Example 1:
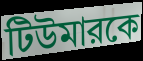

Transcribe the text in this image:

টিউমারকে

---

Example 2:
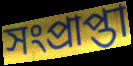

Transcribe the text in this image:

সংপ্রাপ্তা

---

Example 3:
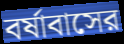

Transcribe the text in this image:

বর্ষাবাসের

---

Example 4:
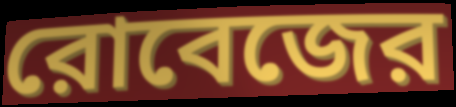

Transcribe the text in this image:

রোবেজের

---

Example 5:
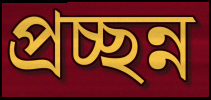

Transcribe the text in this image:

প্রচ্ছন্ন